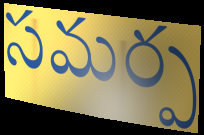
సమర్ప